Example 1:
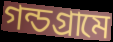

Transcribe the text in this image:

গন্ডগ্রামে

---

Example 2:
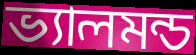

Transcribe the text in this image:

ভ্যালমন্ড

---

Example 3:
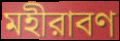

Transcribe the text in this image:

মহীরাবণ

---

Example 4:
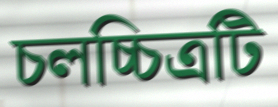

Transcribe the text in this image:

চলচ্চিত্রটি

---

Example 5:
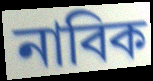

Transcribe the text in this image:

নাবিক